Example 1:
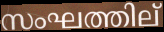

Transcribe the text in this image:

സംഘത്തില്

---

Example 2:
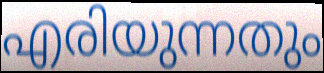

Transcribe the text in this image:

എരിയുന്നതും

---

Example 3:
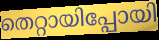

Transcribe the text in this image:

തെറ്റായിപ്പോയി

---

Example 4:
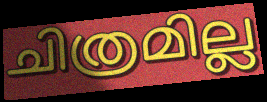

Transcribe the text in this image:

ചിത്രമില്ല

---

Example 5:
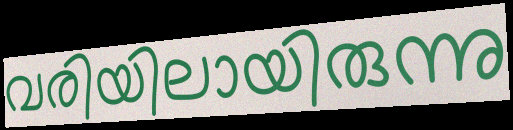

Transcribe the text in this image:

വരിയിലായിരുന്നു